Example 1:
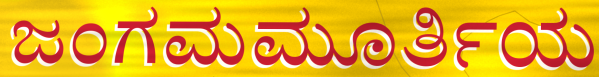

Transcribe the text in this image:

ಜಂಗಮಮೂರ್ತಿಯ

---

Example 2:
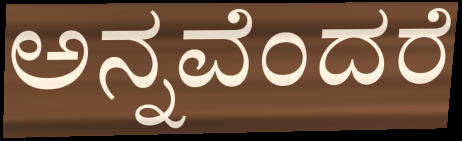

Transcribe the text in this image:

ಅನ್ನವೆಂದರೆ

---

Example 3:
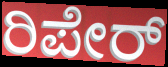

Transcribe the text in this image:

ರಿಪೇರ್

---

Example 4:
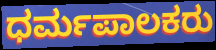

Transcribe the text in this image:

ಧರ್ಮಪಾಲಕರು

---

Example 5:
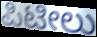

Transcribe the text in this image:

ಪಿಟೀಲು